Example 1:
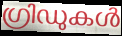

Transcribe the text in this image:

ഗ്രിഡുകൾ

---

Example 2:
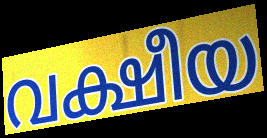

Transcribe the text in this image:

വക്ഷീയ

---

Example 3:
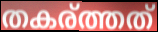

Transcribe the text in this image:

തകര്ത്തത്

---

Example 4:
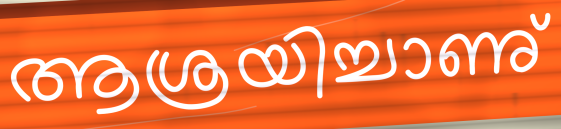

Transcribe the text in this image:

ആശ്രയിച്ചാണു്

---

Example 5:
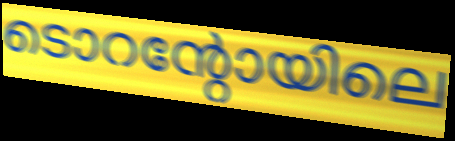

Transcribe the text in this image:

ടൊറന്റോയിലെ